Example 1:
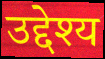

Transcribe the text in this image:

उद्देश्‍य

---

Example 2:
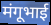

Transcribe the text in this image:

मंगूभाई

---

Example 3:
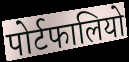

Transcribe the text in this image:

पोर्टफालियो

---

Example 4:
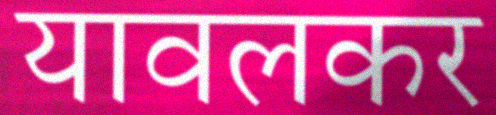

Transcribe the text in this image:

यावलकर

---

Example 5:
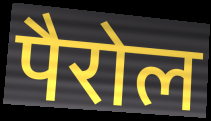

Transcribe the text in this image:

पैरोल